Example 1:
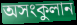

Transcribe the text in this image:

অসংকুলান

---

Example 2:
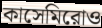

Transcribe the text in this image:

কাসেমিরোও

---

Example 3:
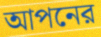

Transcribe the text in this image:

আপনের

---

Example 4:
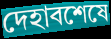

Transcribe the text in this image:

দেহাবশেষে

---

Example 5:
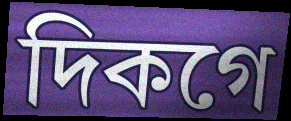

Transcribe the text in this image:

দিকগে